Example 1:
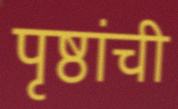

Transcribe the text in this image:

पृष्ठांची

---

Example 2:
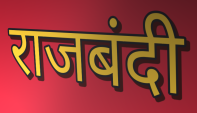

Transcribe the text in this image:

राजबंदी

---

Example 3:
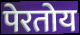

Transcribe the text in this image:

पेरतोय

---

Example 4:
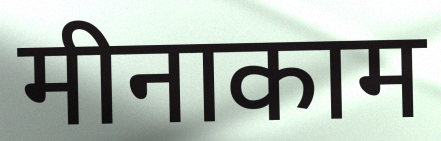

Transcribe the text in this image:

मीनाकाम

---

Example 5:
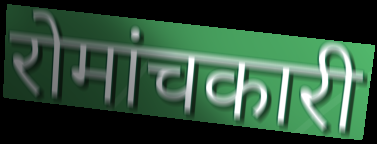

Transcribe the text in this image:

रोमांचकारी